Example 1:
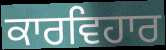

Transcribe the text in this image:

ਕਾਰਵਿਹਾਰ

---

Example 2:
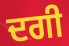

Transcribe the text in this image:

ਦਗੀ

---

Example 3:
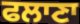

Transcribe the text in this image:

ਫਲਾਣਾ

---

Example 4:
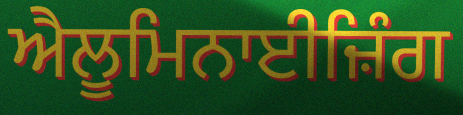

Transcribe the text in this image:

ਐਲੂਮਿਨਾਈਜ਼ਿੰਗ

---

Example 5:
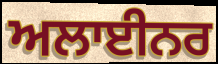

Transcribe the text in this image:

ਅਲਾਈਨਰ